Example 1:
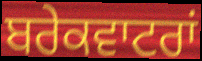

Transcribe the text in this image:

ਬਰੇਕਵਾਟਰਾਂ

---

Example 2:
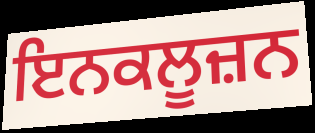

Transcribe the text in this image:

ਇਨਕਲੂਜ਼ਨ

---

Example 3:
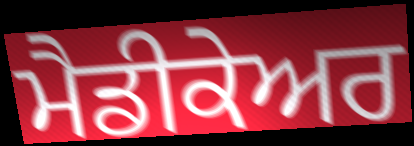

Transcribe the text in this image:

ਮੈਡੀਕੇਅਰ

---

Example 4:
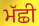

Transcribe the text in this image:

ਮੱਛੀ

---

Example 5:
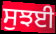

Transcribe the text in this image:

ਸੁਝਈ